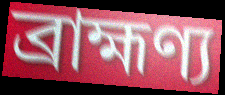
ব্রাহ্মণ্য